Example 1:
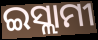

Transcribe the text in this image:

ଇସ୍ଲାମୀ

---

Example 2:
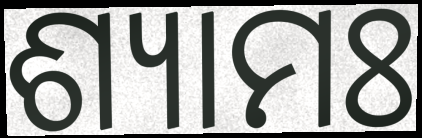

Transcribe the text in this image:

ଶ୍ୟାମଃ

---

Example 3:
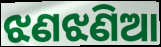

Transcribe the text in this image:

ଝଣଝଣିଆ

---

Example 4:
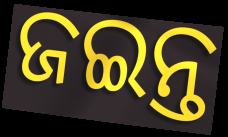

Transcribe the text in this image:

ଜଇନ୍ତ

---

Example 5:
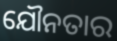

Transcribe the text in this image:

ଯୌନତାର